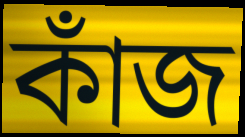
কাঁজ